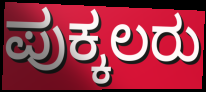
ಪುಕ್ಕಲರು